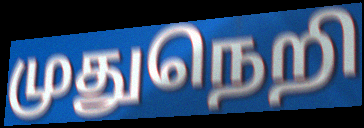
முதுநெறி